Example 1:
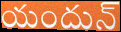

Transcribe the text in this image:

యందున్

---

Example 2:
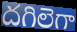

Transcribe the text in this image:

దగిలెగా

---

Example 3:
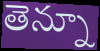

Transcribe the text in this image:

తెన్నూ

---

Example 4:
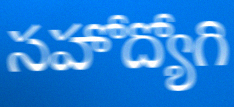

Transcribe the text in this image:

సహోద్యోగి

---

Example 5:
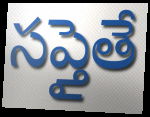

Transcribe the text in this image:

సప్తైతే